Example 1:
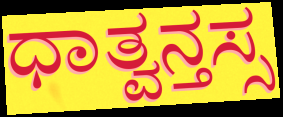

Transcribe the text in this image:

ಧಾತ್ವನ್ತಸ್ಸ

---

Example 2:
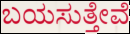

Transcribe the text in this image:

ಬಯಸುತ್ತೇವೆ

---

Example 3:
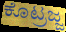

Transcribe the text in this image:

ಕೊಟ್ರಜ್ಜ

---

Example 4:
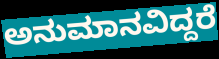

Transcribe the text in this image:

ಅನುಮಾನವಿದ್ದರೆ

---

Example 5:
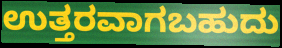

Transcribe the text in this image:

ಉತ್ತರವಾಗಬಹುದು